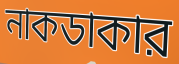
নাকডাকার